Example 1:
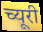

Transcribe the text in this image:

च्यूरी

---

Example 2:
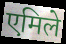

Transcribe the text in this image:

एमिले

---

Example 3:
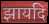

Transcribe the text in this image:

झायदि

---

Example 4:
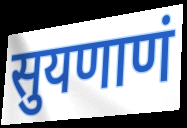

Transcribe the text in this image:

सुयणाणं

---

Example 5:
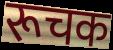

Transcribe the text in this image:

रूचक